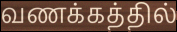
வணக்கத்தில்